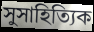
সুসাহিত্যিক